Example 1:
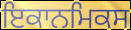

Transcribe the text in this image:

ਇਕਾਨਮਿਕਸ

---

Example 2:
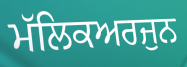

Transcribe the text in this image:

ਮੱਲਿਕਅਰਜੁਨ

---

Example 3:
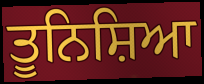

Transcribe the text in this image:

ਤੂਨਿਸ਼ਿਆ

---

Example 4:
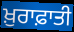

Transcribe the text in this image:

ਖ਼ੁਰਾਫ਼ਾਤੀ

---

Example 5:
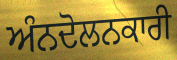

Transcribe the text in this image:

ਅੰਨਦੋਲਨਕਾਰੀ